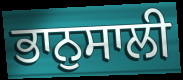
ਭਾਨੁਸਾਲੀ